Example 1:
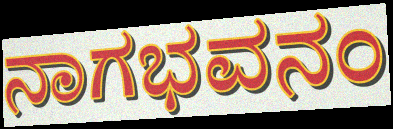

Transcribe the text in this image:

ನಾಗಭವನಂ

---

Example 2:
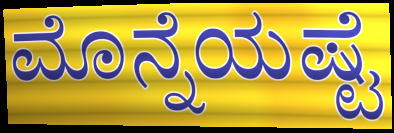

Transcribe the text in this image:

ಮೊನ್ನೆಯಷ್ಟೆ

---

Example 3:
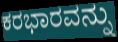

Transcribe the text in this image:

ಕರಭಾರವನ್ನು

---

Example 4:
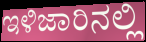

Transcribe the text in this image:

ಇಳಿಜಾರಿನಲ್ಲಿ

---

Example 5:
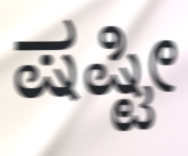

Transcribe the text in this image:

ಷಷ್ಟೀ